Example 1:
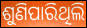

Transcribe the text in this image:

ଶୁଣିପାରିଥିଲି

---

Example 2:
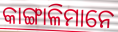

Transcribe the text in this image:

କାଙ୍ଗାଳିମାନେ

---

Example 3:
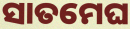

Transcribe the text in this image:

ସାତମେଘ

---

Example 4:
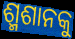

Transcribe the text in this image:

ଶ୍ମଶାନକୁ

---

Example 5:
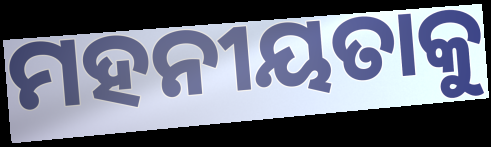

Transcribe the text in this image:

ମହନୀୟତାକୁ